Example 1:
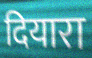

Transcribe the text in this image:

दियारा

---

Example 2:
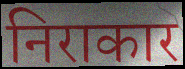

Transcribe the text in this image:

निराकार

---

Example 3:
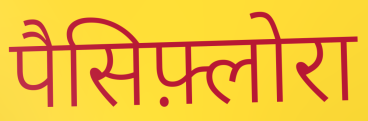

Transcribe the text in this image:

पैसिफ़्लोरा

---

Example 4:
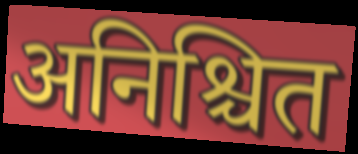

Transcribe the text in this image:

अनिश्चित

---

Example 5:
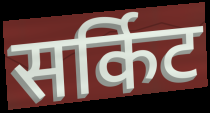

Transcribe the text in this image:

सर्किट